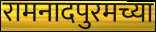
रामनादपुरमच्या